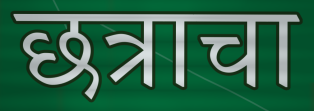
छत्राचा